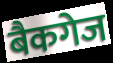
बैकगेज